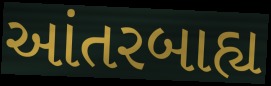
આંતરબાહ્ય